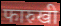
फारुखी